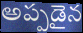
అప్పడైన